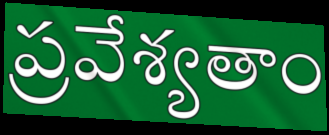
ప్రవేశ్యతాం